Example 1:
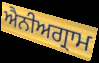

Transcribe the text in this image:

ਐਨੀਅਗ੍ਰਾਮ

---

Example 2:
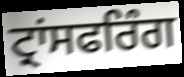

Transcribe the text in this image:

ਟ੍ਰਾਂਸਫਰਿੰਗ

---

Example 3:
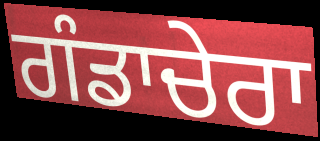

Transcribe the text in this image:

ਗੰਡਾਚੇਰਾ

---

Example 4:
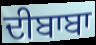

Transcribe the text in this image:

ਦੀਬਾਬਾ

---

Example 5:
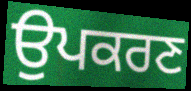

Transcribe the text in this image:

ਉਪਕਰਣ